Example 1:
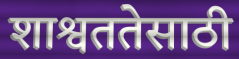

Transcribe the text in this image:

शाश्वततेसाठी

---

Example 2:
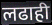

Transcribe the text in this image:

लढाही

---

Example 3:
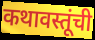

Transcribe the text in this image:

कथावस्तूंची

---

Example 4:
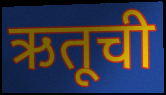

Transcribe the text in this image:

ऋतूची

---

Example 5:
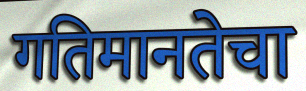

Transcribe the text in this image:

गतिमानतेचा